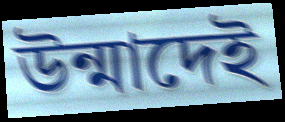
উন্মাদেই